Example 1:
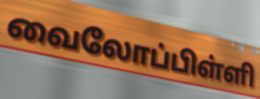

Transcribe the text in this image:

வைலோப்பிள்ளி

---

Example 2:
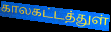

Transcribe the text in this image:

காலகட்டத்துள்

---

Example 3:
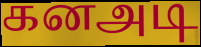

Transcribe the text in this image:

கனஅடி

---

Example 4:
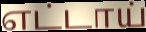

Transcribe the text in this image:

எட்டாய்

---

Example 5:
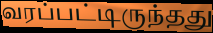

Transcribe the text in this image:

வரப்பட்டிருந்தது